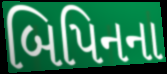
બિપિનના